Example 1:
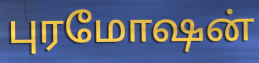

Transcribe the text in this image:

புரமோஷன்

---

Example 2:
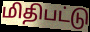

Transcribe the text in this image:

மிதிபட்டு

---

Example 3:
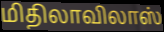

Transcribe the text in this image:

மிதிலாவிலாஸ்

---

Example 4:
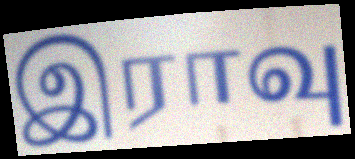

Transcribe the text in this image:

இராவு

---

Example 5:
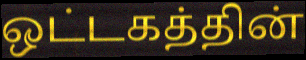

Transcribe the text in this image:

ஒட்டகத்தின்